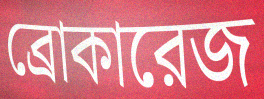
ব্রোকারেজ